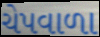
ચેપવાળા